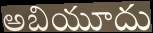
అబియూదు